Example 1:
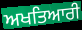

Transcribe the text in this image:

ਅਖਤਿਆਰੀ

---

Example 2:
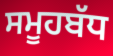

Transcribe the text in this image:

ਸਮੂਹਬੱਧ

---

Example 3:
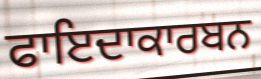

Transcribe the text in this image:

ਫਾਇਦਾਕਾਰਬਨ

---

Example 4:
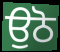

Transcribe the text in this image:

ਉਠੋ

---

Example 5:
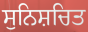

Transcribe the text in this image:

ਸੁਨਿਸ਼ਚਿਤ